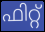
ഫിറ്റ്